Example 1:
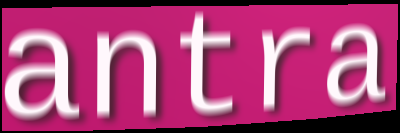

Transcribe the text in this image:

antra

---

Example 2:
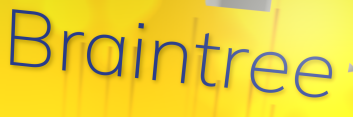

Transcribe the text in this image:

Braintree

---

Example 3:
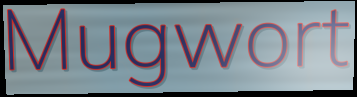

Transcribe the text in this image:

Mugwort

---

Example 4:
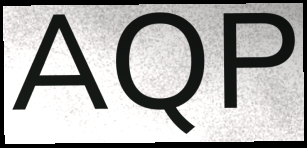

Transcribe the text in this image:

AQP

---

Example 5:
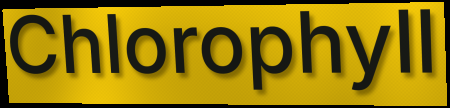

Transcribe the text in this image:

Chlorophyll